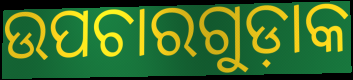
ଉପଚାରଗୁଡ଼ାକ